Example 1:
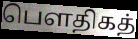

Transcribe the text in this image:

பௌதிகத்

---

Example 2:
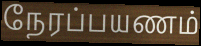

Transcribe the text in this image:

நேரப்பயணம்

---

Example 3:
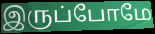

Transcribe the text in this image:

இருப்போமே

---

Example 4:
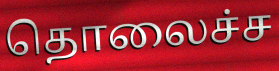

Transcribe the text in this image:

தொலைச்ச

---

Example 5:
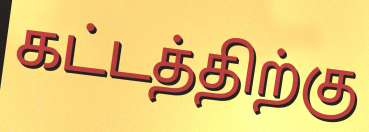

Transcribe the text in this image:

கட்டத்திற்கு